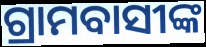
ଗ୍ରାମବାସୀଙ୍କ